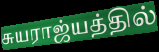
சுயராஜ்யத்தில்